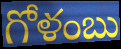
గోళంబు